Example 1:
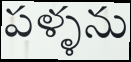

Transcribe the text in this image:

పళ్ళను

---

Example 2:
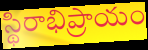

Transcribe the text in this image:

స్థిరాభిప్రాయం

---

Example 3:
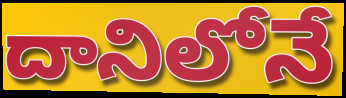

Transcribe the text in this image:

దానిలోనే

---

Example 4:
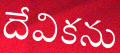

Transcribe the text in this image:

దేవికను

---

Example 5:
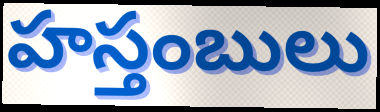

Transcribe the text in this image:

హస్తంబులు